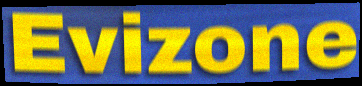
Evizone